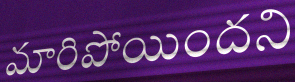
మారిపోయిందని